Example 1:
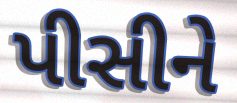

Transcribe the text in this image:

પીસીને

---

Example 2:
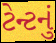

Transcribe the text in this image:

ટેન્ટનું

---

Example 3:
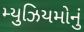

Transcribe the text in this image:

મ્યુઝિયમોનું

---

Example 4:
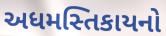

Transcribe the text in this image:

અધમસ્તિકાયનો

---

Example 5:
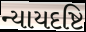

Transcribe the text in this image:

ન્યાયદષ્ટિ